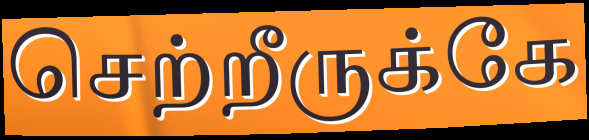
செற்றீருக்கே